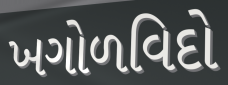
ખગોળવિદો